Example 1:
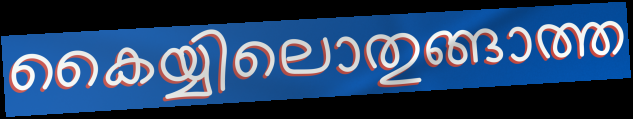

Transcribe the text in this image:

കൈയ്യിലൊതുങ്ങാത്ത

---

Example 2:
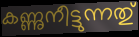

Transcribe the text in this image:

കണ്ണുനീട്ടുന്നതു്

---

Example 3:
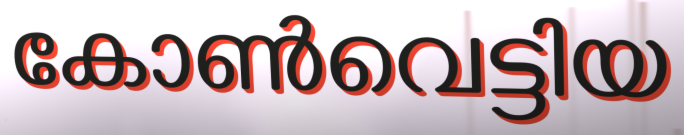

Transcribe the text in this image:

കോൺവെട്ടിയ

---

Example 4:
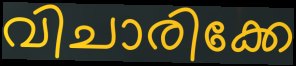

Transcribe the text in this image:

വിചാരിക്കേ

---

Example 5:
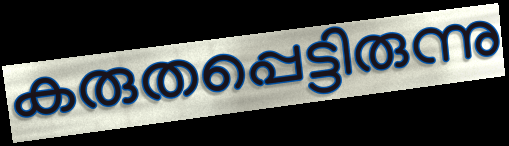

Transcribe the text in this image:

കരുതപ്പെട്ടിരുന്നു